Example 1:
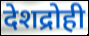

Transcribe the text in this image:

देशद्रोही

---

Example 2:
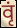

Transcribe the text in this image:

वृं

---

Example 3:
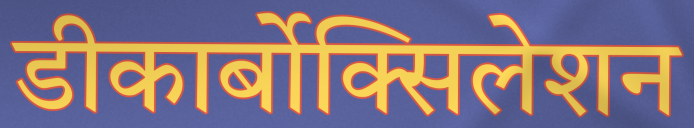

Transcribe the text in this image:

डीकार्बोक्सिलेशन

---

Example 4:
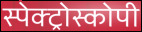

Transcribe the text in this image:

स्पेक्ट्रोस्कोपी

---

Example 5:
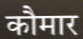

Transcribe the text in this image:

कौमार